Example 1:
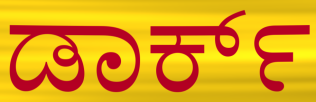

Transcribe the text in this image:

ಡಾರ್ಕ್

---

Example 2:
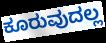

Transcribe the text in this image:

ಕೂರುವುದಲ್ಲ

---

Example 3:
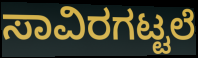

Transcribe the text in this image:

ಸಾವಿರಗಟ್ಟಲೆ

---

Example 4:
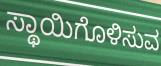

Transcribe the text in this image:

ಸ್ಥಾಯಿಗೊಳಿಸುವ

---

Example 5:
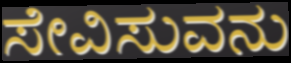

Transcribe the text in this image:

ಸೇವಿಸುವನು